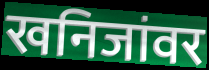
खनिजांवर